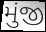
મુંજી